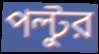
পল্টুর